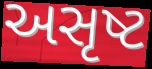
અસૃષ્ટ